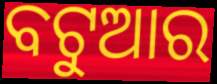
ବଟୁଆର